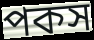
পকস